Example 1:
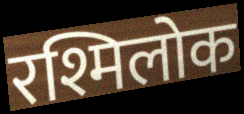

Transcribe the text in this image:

रश्मिलोक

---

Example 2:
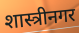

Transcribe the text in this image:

शास्त्रीनगर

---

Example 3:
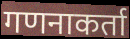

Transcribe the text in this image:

गणनाकर्ता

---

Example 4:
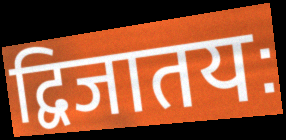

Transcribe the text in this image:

द्विजातयः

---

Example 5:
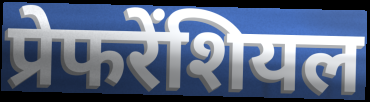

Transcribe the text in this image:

प्रेफरेंशियल